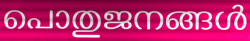
പൊതുജനങ്ങൾ